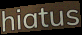
hiatus